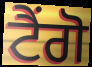
ਟੈਂਗੋ